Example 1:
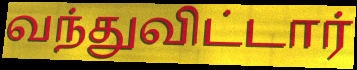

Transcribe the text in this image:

வந்துவிட்டார்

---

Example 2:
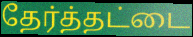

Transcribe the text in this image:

தேர்த்தட்டை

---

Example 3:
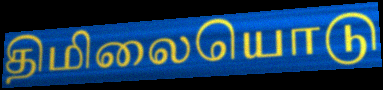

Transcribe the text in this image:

திமிலையொடு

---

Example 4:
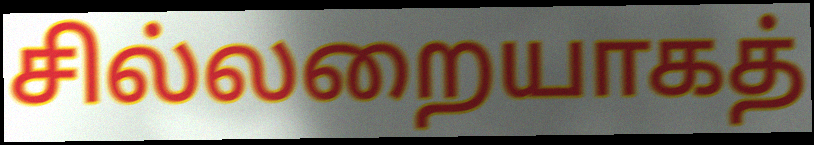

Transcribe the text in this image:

சில்லறையாகத்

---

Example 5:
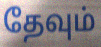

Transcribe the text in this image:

தேவும்